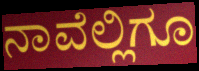
ನಾವೆಲ್ಲಿಗೂ